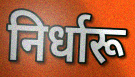
निर्धारू